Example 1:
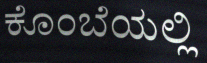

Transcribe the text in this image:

ಕೊಂಬೆಯಲ್ಲಿ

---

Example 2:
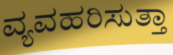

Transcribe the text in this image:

ವ್ಯವಹರಿಸುತ್ತಾ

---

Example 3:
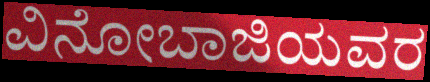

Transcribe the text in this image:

ವಿನೋಬಾಜಿಯವರ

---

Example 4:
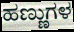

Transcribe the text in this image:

ಹಣ್ಣುಗಳ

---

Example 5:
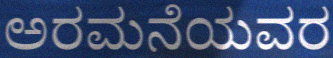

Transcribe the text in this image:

ಅರಮನೆಯವರ